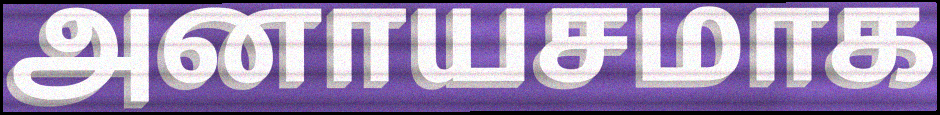
அனாயசமாக